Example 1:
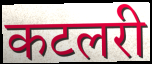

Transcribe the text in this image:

कटलरी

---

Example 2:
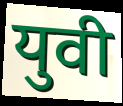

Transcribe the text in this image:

युवी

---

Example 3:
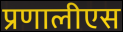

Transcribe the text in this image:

प्रणालीएस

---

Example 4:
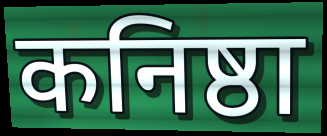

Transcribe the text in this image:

कनिष्ठा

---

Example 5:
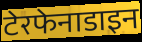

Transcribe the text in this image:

टेरफेनाडाइन